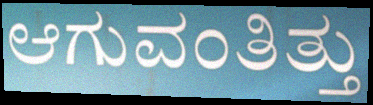
ಆಗುವಂತಿತ್ತು